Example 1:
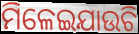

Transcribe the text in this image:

ମିଳେଇଯାଉଚି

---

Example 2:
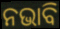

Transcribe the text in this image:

ନଭାବି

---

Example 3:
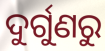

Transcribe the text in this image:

ଦୁର୍ଗୁଣରୁ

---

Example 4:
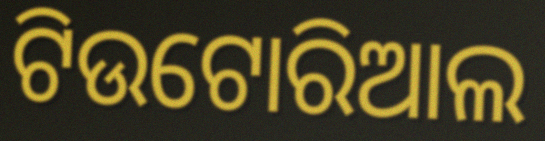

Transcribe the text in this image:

ଟିଉଟୋରିଆଲ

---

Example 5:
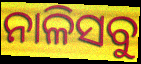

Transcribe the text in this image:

ନାଳିସବୁ